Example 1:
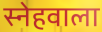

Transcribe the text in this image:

स्नेहवाला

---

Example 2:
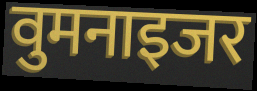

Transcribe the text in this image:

वुमनाइजर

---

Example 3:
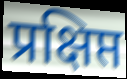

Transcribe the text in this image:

प्रक्षिप्त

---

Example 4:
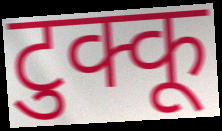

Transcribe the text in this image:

टुक्कू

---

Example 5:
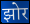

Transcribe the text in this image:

झोर